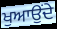
ਖੁਆਉਂਦੇ